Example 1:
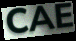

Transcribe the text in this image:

CAE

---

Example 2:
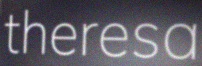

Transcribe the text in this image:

theresa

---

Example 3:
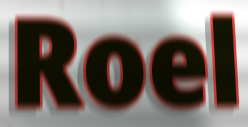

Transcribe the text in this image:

Roel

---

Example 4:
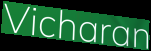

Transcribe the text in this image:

Vicharan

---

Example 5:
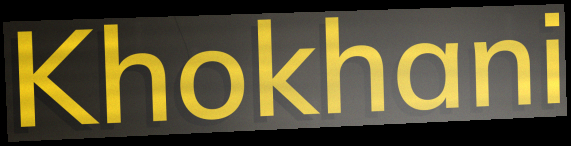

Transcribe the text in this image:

Khokhani